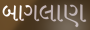
બાગલાણ